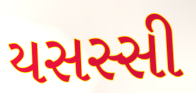
યસસ્સી